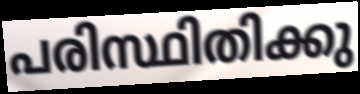
പരിസ്ഥിതിക്കു